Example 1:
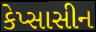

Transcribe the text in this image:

કેપ્સાસીન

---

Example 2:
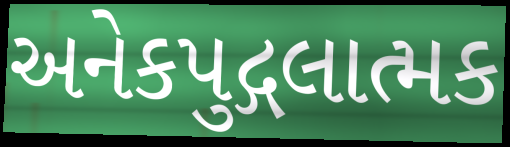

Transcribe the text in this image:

અનેકપુદ્ગલાત્મક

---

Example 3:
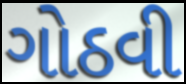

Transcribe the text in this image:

ગોઠવી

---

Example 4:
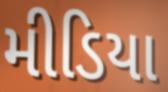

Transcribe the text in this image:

મીડિયા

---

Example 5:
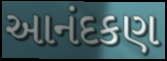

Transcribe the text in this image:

આનંદકણ